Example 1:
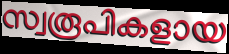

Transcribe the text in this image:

സ്വരൂപികളായ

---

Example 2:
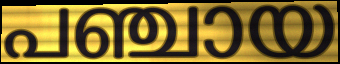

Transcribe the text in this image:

പഞ്ചായ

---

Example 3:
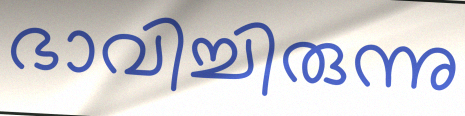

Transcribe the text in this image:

ഭാവിച്ചിരുന്നു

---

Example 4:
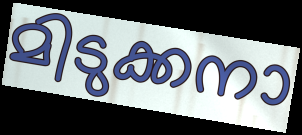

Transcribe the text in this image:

മിടുക്കനാ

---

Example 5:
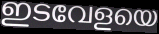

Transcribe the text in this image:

ഇടവേളയെ